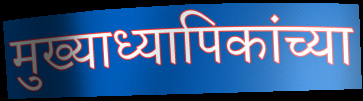
मुख्याध्यापिकांच्या